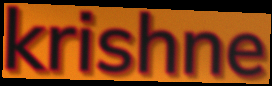
krishne